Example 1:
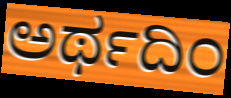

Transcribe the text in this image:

ಅರ್ಥದಿಂ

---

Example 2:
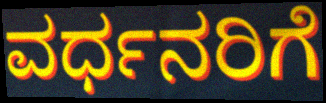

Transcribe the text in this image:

ವರ್ಧನರಿಗೆ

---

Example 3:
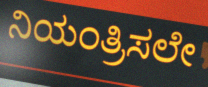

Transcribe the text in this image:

ನಿಯಂತ್ರಿಸಲೇ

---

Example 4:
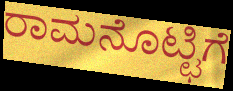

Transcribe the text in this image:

ರಾಮನೊಟ್ಟಿಗೆ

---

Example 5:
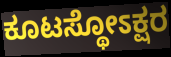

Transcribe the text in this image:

ಕೂಟಸ್ಥೋಽಕ್ಷರ